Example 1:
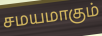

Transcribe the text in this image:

சமயமாகும்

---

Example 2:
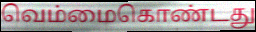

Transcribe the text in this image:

வெம்மைகொண்டது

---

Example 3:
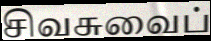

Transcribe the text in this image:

சிவசுவைப்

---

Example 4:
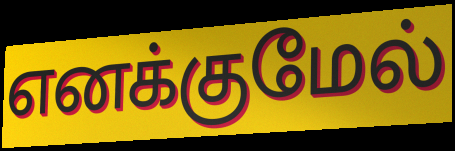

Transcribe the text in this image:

எனக்குமேல்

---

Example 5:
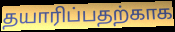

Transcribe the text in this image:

தயாரிப்பதற்காக